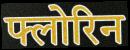
फ्लोरिन